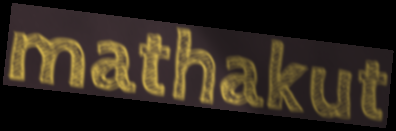
mathakut